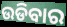
ଉଡିବାର